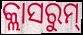
କ୍ଲାସରୁମ୍